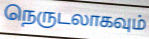
நெருடலாகவும்